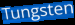
Tungsten